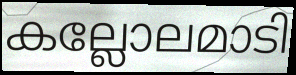
കല്ലോലമാടി